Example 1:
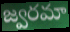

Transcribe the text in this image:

జ్వరమా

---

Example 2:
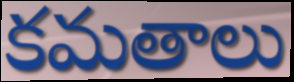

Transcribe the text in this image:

కమతాలు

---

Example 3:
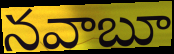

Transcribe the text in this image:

నవాబూ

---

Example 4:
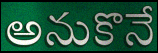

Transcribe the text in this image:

అనుకొనే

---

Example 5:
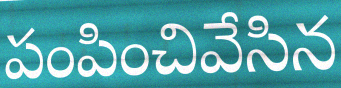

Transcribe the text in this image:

పంపించివేసిన